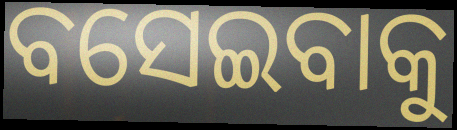
ବସେଇବାକୁ